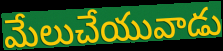
మేలుచేయువాడు